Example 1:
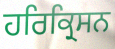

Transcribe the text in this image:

ਹਰਿਕ੍ਰਿਸਨ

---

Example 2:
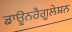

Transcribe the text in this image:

ਡਾਊਨਰੈਗੂਲੇਸ਼ਨ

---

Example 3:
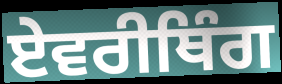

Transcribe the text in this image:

ਏਵਰੀਥਿੰਗ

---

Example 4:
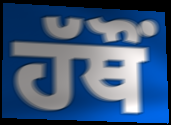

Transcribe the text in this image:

ਹੱਥੌਂ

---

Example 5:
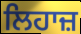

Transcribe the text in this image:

ਲਿਹਾਜ਼